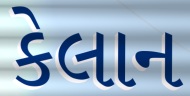
કેલાન